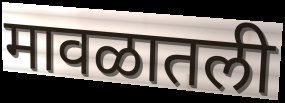
मावळातली